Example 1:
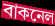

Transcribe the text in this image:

বাকনেল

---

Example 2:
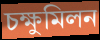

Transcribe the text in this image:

চক্ষুমিলন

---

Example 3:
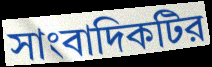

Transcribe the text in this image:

সাংবাদিকটির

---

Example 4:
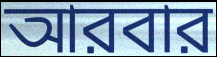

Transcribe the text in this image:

আরবার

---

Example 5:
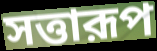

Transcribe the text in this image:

সত্তারূপ